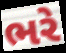
ભરે